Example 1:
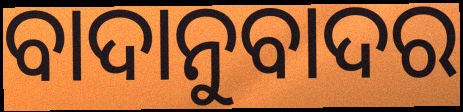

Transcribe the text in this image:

ବାଦାନୁବାଦର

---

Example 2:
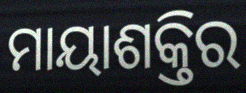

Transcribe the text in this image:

ମାୟାଶକ୍ତିର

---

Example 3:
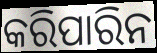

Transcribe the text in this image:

କରିପାରିନ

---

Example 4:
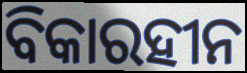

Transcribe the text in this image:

ବିକାରହୀନ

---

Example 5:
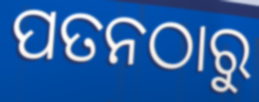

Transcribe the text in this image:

ପତନଠାରୁ